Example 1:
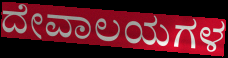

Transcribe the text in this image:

ದೇವಾಲಯಗಳ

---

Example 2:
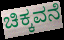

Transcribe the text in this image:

ಚಿಕ್ಕವನೆ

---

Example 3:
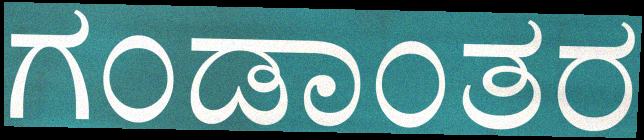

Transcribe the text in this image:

ಗಂಡಾಂತರ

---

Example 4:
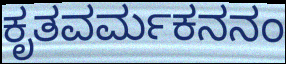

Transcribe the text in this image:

ಕೃತವರ್ಮಕನನಂ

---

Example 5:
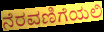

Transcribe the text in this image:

ನೆರವಣಿಗೆಯಲಿ